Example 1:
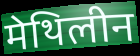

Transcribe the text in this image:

मेथिलीन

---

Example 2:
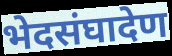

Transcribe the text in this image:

भेदसंघादेण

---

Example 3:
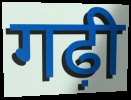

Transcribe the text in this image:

गढ़ी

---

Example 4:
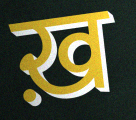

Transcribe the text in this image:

ख़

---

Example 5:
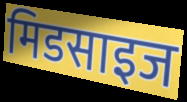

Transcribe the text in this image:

मिडसाइज